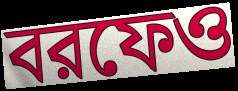
বরফেও